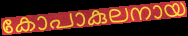
കോപാകുലനായ